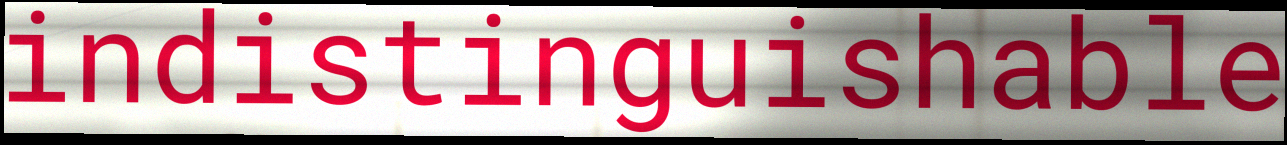
indistinguishable